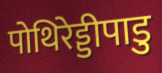
पोथिरेड्डीपाडु